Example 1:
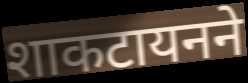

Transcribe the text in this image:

शाकटायनने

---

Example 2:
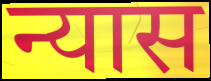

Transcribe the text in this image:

न्‍यास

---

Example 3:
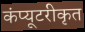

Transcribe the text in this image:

कंप्यूटरीकृत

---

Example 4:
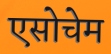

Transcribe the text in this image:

एसोचेम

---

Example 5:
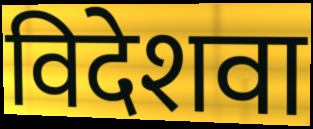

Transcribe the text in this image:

विदेशवा